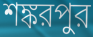
শঙ্করপুর